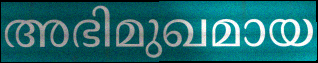
അഭിമുഖമായ